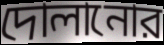
দোলানোর